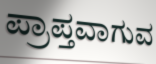
ಪ್ರಾಪ್ತವಾಗುವ